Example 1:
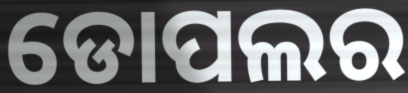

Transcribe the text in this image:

ଡୋପଲର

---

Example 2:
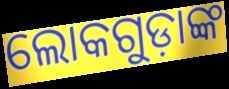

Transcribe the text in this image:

ଲୋକଗୁଡ଼ାଙ୍କ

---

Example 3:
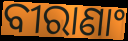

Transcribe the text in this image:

ବୀରାଣାଂ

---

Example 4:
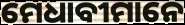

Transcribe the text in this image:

ମେଧାବୀମାନେ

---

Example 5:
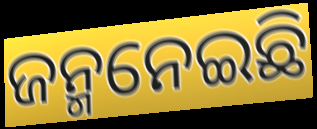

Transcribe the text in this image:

ଜନ୍ମନେଇଛି